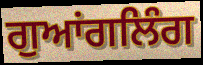
ਗੁਆਂਗਲਿੰਗ